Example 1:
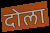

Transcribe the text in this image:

दोला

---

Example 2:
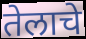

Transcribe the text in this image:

तेलाचे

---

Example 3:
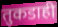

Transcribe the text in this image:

तुकडाही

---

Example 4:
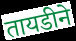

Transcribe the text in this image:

तायडीने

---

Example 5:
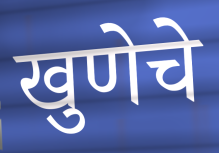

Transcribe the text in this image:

खुणेचे